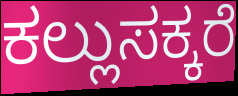
ಕಲ್ಲುಸಕ್ಕರೆ